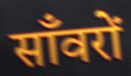
साँवरों